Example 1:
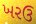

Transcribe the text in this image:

ખરઉ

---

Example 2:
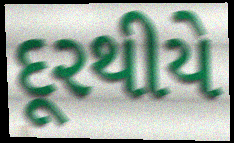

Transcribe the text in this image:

દૂરથીયે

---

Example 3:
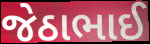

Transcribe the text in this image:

જેઠાભાઈ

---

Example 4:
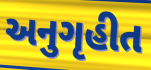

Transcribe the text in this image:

અનુગૃહીત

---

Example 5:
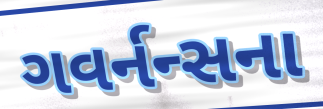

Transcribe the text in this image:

ગવર્નન્સના